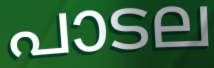
പാടല